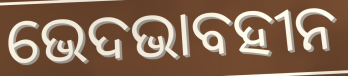
ଭେଦଭାବହୀନ